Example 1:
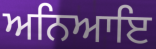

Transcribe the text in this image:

ਅਨਿਆਇ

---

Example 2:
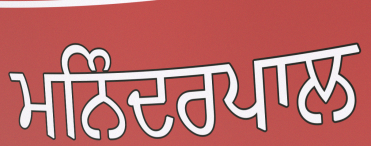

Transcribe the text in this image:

ਮਨਿੰਦਰਪਾਲ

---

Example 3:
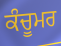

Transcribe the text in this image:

ਕੰਚੂਮਰ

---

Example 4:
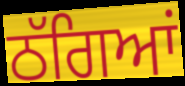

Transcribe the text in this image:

ਠੱਗਿਆਂ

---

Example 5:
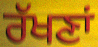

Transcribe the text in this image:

ਰੱਖਣਾਂ